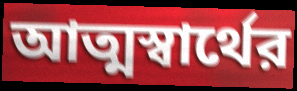
আত্মস্বার্থের